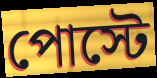
পোস্টে